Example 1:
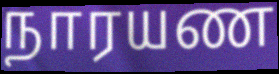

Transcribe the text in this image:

நாரயண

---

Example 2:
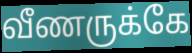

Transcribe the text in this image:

வீணருக்கே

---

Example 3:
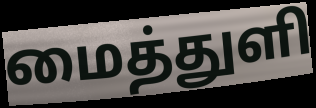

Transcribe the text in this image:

மைத்துளி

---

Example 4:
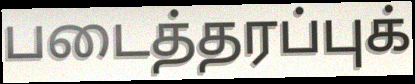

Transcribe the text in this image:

படைத்தரப்புக்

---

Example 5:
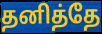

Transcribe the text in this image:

தனித்தே